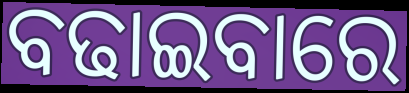
ବଢାଇବାରେ